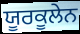
ਯੂਰਕੂਲੇਨ